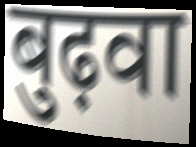
बुढ़वा